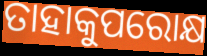
ତାହାକୁପରୋକ୍ଷ